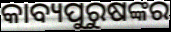
କାବ୍ୟପୁରୁଷଙ୍କର